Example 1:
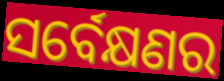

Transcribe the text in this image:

ସର୍ବେକ୍ଷଣର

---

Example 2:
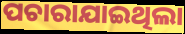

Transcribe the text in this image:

ପଚାରାଯାଇଥିଲା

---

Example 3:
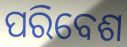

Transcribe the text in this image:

ପରିବେଶ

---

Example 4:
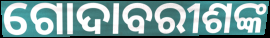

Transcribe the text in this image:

ଗୋଦାବରୀଶଙ୍କ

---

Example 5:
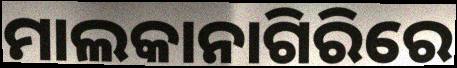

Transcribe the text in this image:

ମାଲକାନାଗିରିରେ